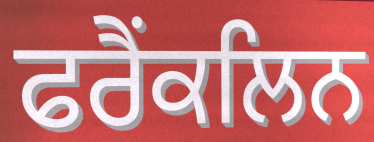
ਫਰੈਂਕਲਿਨ